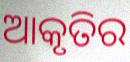
ଆକୃତିର